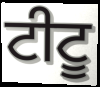
ਟੀਟੂ